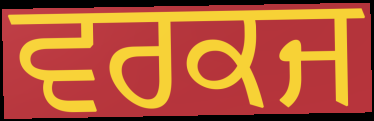
ਵਰਕਜ